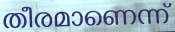
തീരമാണെന്ന്